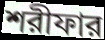
শরীফার